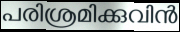
പരിശ്രമിക്കുവിൻ